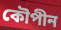
কৌপীন